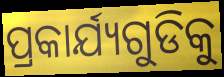
ପ୍ରକାର୍ଯ୍ୟଗୁଡିକୁ